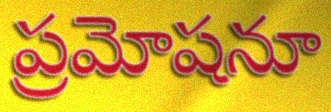
ప్రమోషనూ